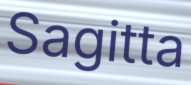
Sagitta